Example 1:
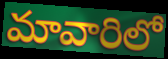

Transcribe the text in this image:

మావారిలో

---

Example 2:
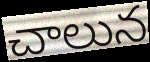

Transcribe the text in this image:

చాలున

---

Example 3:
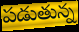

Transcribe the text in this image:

పడుతున్న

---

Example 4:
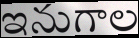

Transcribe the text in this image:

ఇనుగాల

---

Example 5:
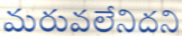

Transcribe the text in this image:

మరువలేనిదని